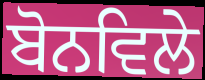
ਬੋਨਵਿਲੇ